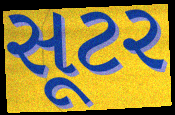
સૂટર